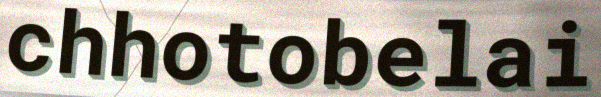
chhotobelai